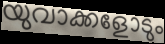
യുവാക്കളോടും